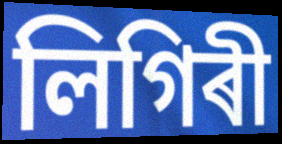
লিগিৰী